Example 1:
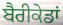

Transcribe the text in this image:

ਬੈਰੀਕੇਡਾਂ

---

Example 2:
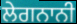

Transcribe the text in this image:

ਲੇਗਨਾਨੀ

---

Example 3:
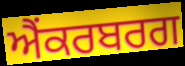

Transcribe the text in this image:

ਐਂਕਰਬਰਗ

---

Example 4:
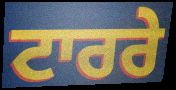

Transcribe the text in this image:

ਟਾਰਰੇ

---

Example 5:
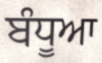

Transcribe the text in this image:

ਬੰਧੂਆ